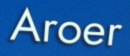
Aroer